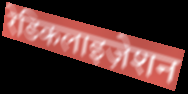
रेडिकलाइज़ेशन